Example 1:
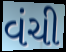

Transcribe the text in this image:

વંચી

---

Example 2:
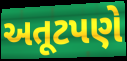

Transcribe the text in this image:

અતૂટપણે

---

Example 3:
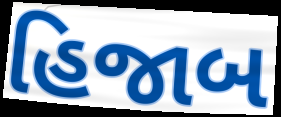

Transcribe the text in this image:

હિજાબ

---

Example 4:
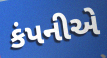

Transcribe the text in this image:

કંપનીએ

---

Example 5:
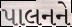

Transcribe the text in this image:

પાલનને